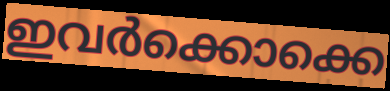
ഇവർക്കൊക്കെ